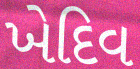
ખેદિવ